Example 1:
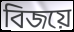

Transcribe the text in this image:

বিজয়ে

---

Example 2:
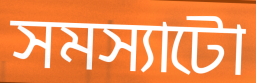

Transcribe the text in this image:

সমস্যাটো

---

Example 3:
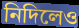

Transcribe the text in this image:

নিদিলেও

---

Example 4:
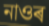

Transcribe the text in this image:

নাওৰ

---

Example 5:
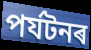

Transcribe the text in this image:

পৰ্যটনৰ